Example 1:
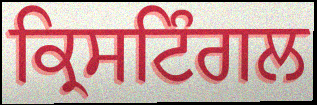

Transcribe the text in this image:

ਕ੍ਰਿਸਟਿੰਗਲ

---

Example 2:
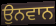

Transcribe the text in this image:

ਉਨਵਾਨ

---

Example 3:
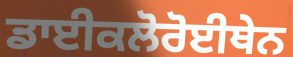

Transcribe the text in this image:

ਡਾਈਕਲੋਰੋਈਥੇਨ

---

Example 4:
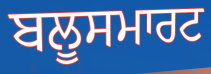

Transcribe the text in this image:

ਬਲੂਸਮਾਰਟ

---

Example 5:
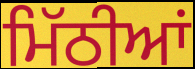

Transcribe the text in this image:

ਮਿੱਠੀਆਂ